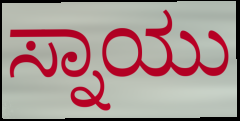
ಸ್ನಾಯು